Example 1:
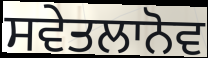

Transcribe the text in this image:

ਸਵੇਤਲਾਨੋਵ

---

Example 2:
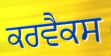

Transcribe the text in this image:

ਕਰਵੈਕਸ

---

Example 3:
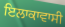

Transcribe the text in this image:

ਇਲਾਕਾਵਾਸੀ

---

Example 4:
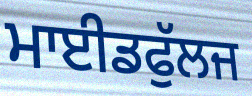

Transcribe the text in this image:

ਮਾਈਡਫੁੱਲਜ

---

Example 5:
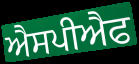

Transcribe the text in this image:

ਐਸਪੀਐਫ